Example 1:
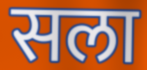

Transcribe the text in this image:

सला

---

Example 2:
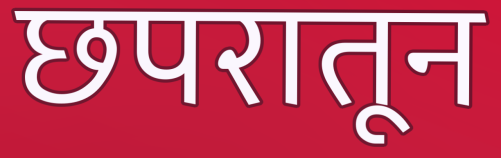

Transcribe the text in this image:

छपरातून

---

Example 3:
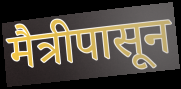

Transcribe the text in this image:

मैत्रीपासून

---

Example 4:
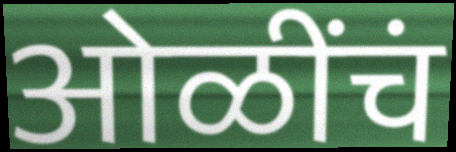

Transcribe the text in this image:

ओळींचं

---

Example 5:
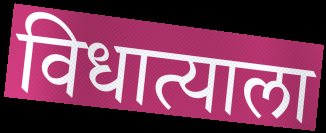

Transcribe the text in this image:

विधात्याला